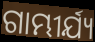
ଗାମ୍ଭୀର୍ଯ୍ୟ